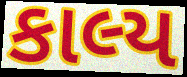
કાલ્ય